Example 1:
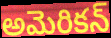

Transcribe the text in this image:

అమెరికన్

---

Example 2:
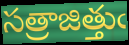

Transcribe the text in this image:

సత్రాజిత్తుఁ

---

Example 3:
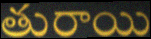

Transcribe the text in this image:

తురాయి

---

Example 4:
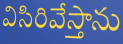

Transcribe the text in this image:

విసిరివేస్తాను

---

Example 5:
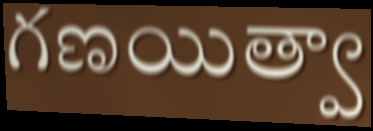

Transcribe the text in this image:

గణయిత్వా